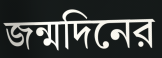
জন্মদিনের